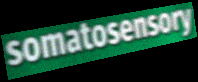
somatosensory